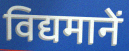
विद्यमानें